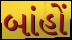
બાંહોં